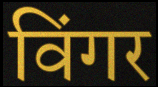
विंगर